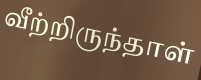
வீற்றிருந்தாள்